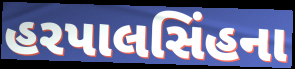
હરપાલસિંહના